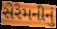
સેરેમનીનું